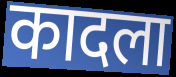
कादला